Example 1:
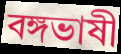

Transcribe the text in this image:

বঙ্গভাষী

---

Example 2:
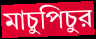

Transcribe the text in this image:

মাচুপিচুর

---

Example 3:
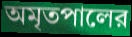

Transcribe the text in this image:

অমৃতপালের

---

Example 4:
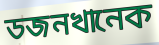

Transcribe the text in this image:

ডজনখানেক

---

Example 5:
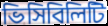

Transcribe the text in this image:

ভিসিবিলিটি